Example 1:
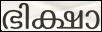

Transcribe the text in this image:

ഭിക്ഷാ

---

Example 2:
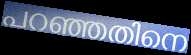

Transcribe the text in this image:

പറഞ്ഞതിനെ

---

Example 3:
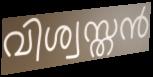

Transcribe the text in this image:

വിശ്വസ്തൻ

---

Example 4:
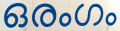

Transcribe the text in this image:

ഒരംഗം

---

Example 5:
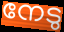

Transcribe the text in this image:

നേടു